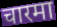
चारमा